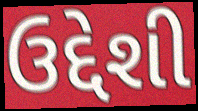
ઉદ્દેશી